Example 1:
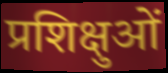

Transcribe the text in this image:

प्रशिक्षुओं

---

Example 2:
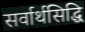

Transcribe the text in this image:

सर्वार्थसिद्धि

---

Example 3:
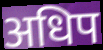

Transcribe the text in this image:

अधिप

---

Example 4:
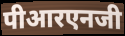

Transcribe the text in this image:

पीआरएनजी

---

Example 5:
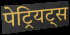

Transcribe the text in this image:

पेट्रियट्स